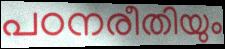
പഠനരീതിയും